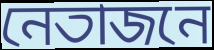
নেতাজনে